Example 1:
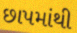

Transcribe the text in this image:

છાપમાંથી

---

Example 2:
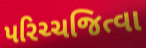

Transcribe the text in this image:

પરિચ્ચજિત્વા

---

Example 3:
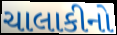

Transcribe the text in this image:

ચાલાકીનો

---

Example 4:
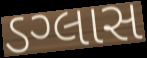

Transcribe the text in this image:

ડગ્લાસ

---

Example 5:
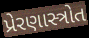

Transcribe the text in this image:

પ્રેરણાસ્ત્રોત